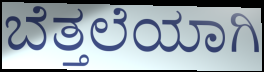
ಬೆತ್ತಲೆಯಾಗಿ